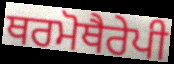
ਥਰਮੋਥੈਰੇਪੀ